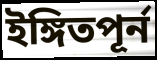
ইঙ্গিতপূর্ন